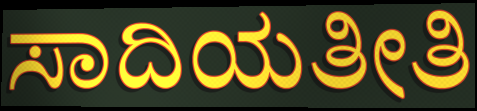
ಸಾದಿಯತೀತಿ